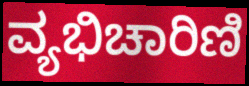
ವ್ಯಭಿಚಾರಿಣಿ